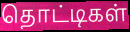
தொட்டிகள்